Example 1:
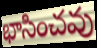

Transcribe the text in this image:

భాసించవు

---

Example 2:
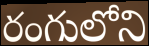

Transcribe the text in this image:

రంగులోని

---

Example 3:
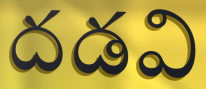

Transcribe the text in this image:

దడవి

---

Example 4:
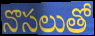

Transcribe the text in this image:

నొసలుతో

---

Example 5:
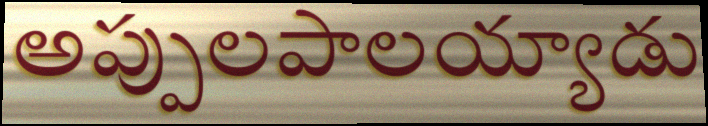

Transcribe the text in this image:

అప్పులపాలయ్యాడు